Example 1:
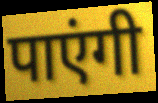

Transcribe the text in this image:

पाएंगी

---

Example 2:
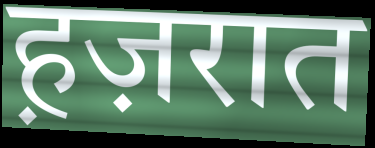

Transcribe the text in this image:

ह़ज़रात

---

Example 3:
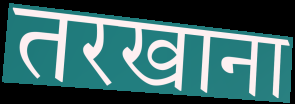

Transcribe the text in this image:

तरखाना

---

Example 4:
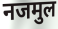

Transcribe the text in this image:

नजमुल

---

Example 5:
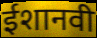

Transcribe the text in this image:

ईशानवी